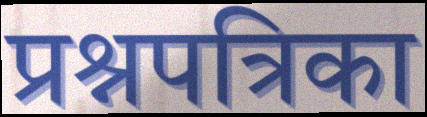
प्रश्नपत्रिका